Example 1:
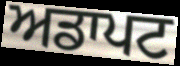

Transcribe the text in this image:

ਅਡਾਪਟ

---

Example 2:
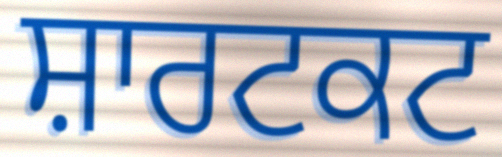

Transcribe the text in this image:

ਸ਼ਾਰਟਕਟ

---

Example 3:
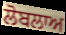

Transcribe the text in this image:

ਲੋਬਲਾਅ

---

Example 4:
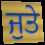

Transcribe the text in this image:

ਜੁਤੇ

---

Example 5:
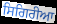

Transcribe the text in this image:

ਸਿਗਿਰੀਆ